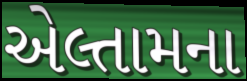
એલ્તામના